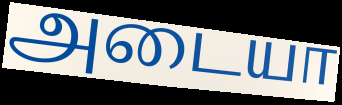
அடையா